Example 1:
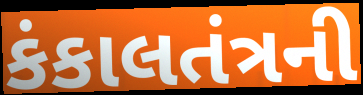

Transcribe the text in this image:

કંકાલતંત્રની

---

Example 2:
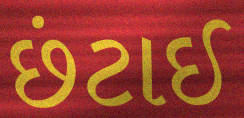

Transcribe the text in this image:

છંટાઈ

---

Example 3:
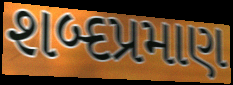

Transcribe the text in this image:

શબ્દપ્રમાણ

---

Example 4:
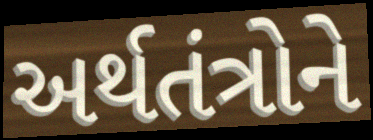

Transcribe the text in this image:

અર્થતંત્રોને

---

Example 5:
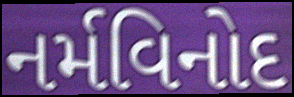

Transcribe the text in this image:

નર્મવિનોદ